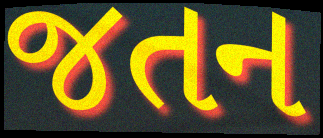
જતન